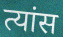
त्यांस